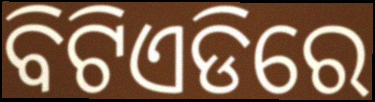
ବିଟିଏଡିରେ